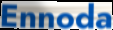
Ennoda